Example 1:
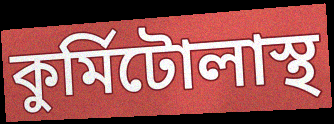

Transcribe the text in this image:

কুর্মিটোলাস্থ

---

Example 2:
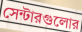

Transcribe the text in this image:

সেন্টারগুলোর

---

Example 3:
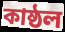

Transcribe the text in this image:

কাষ্ঠল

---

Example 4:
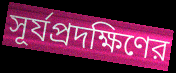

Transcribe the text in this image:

সূর্যপ্রদক্ষিণের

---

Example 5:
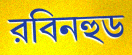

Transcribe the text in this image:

রবিনহুড